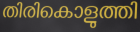
തിരികൊളുത്തി